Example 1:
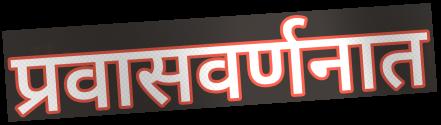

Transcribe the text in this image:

प्रवासवर्णनात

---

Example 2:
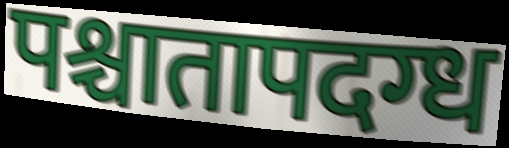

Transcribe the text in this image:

पश्चातापदग्ध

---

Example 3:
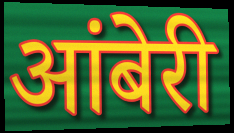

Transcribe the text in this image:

आंबेरी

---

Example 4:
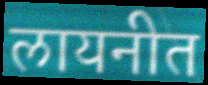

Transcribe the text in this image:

लायनीत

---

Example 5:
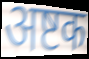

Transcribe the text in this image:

अष्टक